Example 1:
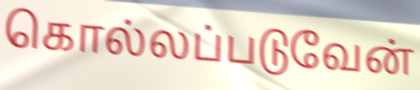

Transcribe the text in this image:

கொல்லப்படுவேன்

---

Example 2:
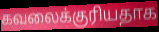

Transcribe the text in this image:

கவலைக்குரியதாக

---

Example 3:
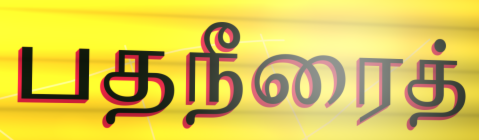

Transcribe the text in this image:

பதநீரைத்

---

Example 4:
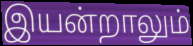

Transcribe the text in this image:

இயன்றாலும்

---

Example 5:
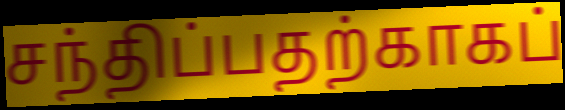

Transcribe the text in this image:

சந்திப்பதற்காகப்